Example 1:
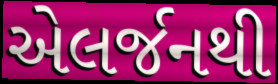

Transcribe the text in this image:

એલર્જનથી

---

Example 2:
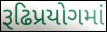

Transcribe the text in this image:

રૂઢિપ્રયોગમાં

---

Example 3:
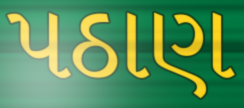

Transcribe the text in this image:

પઠાણ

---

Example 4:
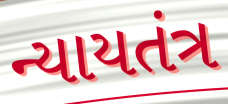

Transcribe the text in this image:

ન્યાયતંત્ર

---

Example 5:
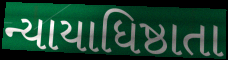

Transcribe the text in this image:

ન્યાયાધિષ્ઠાતા